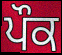
ਪੌਕ